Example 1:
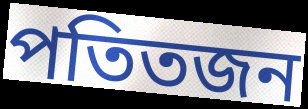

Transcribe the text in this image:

পতিতজন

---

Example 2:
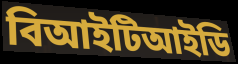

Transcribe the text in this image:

বিআইটিআইডি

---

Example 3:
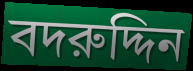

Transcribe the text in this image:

বদরুদ্দিন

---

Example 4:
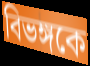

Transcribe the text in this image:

বিভঙ্গকে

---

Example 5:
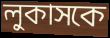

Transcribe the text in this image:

লুকাসকে